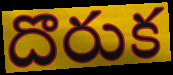
దొరుక